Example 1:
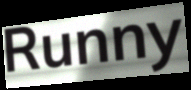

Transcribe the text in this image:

Runny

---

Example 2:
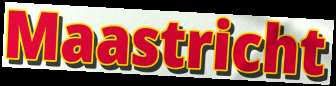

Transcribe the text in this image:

Maastricht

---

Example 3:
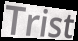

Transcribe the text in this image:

Trist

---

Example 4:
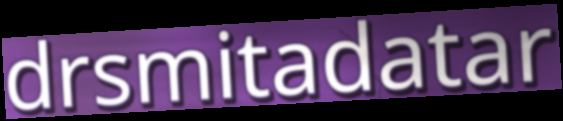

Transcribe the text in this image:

drsmitadatar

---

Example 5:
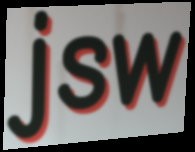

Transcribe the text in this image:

jsw